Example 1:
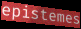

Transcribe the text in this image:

epistemes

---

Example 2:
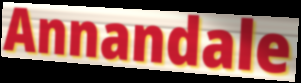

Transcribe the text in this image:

Annandale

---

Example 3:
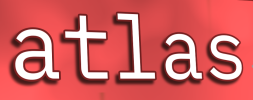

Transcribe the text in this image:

atlas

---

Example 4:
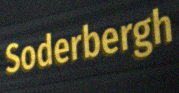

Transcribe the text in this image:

Soderbergh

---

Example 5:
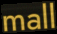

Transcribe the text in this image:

mall